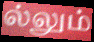
ல்லும்